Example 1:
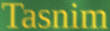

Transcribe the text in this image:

Tasnim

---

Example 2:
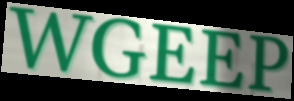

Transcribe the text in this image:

WGEEP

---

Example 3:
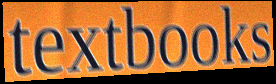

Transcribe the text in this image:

textbooks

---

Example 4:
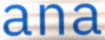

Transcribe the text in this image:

ana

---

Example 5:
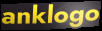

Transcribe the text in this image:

anklogo